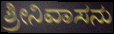
ಶ್ರೀನಿವಾಸನು